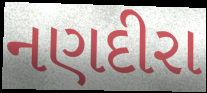
નણદીરા